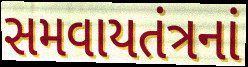
સમવાયતંત્રનાં